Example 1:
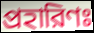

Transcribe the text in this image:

প্রহারিণঃ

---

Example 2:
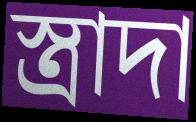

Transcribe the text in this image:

স্ত্রাদা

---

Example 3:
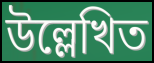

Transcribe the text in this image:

উল্লেখিত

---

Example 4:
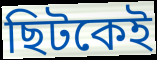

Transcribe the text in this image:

ছিটকেই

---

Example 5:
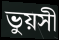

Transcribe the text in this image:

ভুয়সী